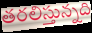
తరలిస్తున్నది